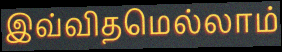
இவ்விதமெல்லாம்